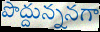
పొద్దున్ననగా